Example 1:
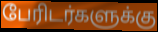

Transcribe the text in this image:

பேரிடர்களுக்கு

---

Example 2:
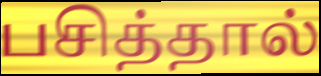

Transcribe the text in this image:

பசித்தால்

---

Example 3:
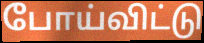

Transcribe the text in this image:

போய்விட்டு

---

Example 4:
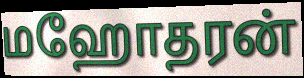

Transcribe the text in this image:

மஹோதரன்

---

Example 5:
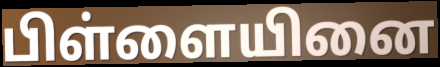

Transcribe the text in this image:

பிள்ளையினை